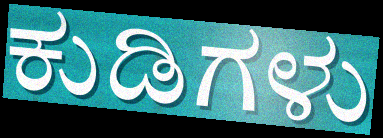
ಕುಡಿಗಳು